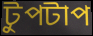
টুপটাপ